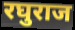
रघुराज